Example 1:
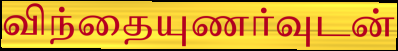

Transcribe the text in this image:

விந்தையுணர்வுடன்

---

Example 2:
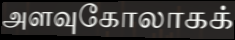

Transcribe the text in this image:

அளவுகோலாகக்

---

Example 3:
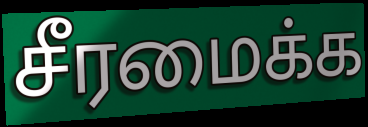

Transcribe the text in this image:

சீரமைக்க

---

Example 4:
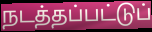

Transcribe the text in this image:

நடத்தப்பட்டுப்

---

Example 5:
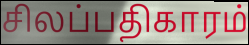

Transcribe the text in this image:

சிலப்பதிகாரம்